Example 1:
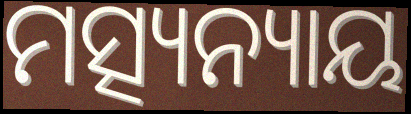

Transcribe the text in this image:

ମତ୍ସ୍ୟନ୍ୟାୟ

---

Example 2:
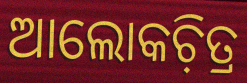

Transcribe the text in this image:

ଆଲୋକଚ଼ିତ୍ର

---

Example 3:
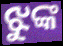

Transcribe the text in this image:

ଝୁଙ୍କ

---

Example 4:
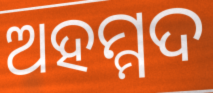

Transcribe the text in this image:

ଅହମ୍ମଦ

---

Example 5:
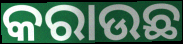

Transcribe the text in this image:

କରାଉଛ